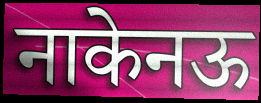
नाकेनऊ